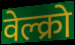
वेल्क्रो